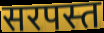
सरपस्त